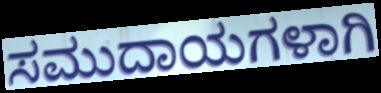
ಸಮುದಾಯಗಳಾಗಿ